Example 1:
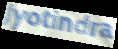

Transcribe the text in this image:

Jyotindra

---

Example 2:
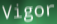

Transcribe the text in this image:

Vigor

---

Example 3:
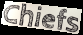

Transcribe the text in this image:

Chiefs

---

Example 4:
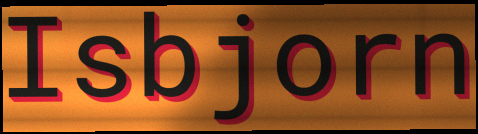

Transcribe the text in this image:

Isbjorn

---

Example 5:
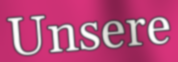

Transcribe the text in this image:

Unsere